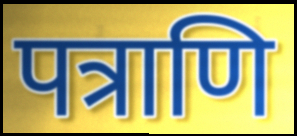
पत्राणि